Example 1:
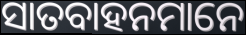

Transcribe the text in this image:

ସାତବାହନମାନେ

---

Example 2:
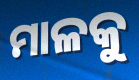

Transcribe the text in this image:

ମାଳକୁ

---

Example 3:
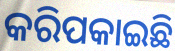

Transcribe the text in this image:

କରିପକାଇଛି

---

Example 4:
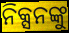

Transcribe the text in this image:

ନିକ୍ସନଙ୍କୁ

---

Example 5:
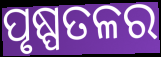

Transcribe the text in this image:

ପୃଷ୍ପତଳର